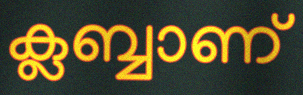
ക്ലബ്ബാണ്